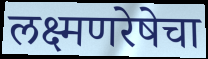
लक्ष्मणरेषेचा